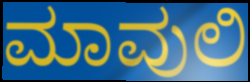
ಮಾವುಲಿ